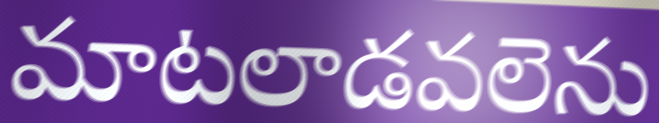
మాటలాడవలెను